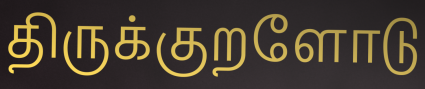
திருக்குறளோடு